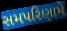
સમપરિણામે